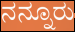
ನನ್ನೂರು